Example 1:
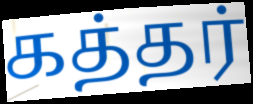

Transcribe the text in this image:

கத்தர்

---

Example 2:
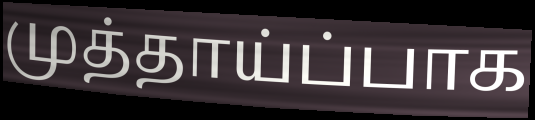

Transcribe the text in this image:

முத்தாய்ப்பாக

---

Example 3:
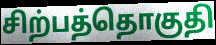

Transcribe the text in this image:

சிற்பத்தொகுதி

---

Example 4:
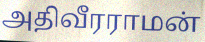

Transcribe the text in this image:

அதிவீரராமன்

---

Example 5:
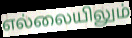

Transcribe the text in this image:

எல்லையிலும்